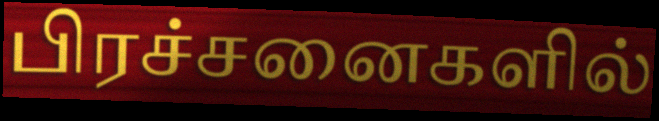
பிரச்சனைகளில்